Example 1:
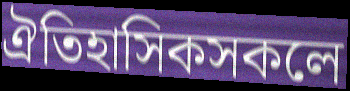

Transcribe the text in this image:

ঐতিহাসিকসকলে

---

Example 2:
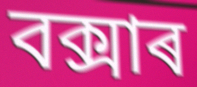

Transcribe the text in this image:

বক্সাৰ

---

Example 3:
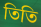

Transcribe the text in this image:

তিতি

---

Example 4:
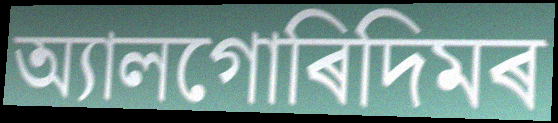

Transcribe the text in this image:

অ্যালগোৰিদিমৰ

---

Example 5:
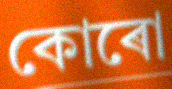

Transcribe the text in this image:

কোৰো